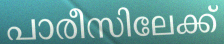
പാരീസിലേക്ക്